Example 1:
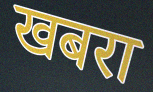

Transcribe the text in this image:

खबरा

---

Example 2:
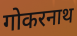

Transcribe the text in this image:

गोकरनाथ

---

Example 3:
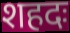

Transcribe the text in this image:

शहदः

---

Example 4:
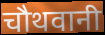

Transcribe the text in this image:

चौथवानी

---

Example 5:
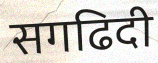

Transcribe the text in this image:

सगढिदी